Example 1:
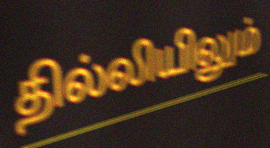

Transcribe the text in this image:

தில்லியிலும்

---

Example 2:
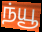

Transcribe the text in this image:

ந்யூ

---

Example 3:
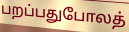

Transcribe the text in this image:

பறப்பதுபோலத்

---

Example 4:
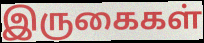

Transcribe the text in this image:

இருகைகள்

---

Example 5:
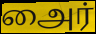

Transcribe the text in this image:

அைர்